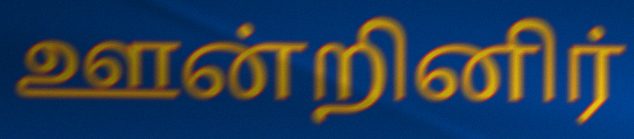
ஊன்றினிர்